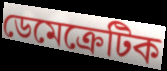
ডেমেক্রেটিক